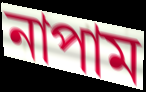
নাপাম